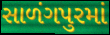
સાળંગપુરમાં